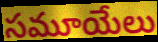
సమూయేలు